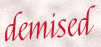
demised